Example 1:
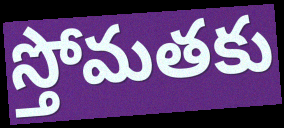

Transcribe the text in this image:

స్తోమతకు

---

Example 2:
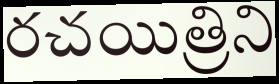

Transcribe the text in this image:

రచయిత్రిని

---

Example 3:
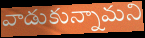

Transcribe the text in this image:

వాడుకున్నామని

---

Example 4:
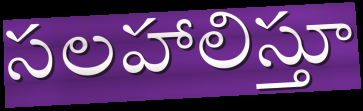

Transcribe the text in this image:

సలహాలిస్తూ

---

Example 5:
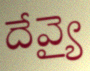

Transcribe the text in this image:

దేవ్యై